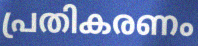
പ്രതികരണം